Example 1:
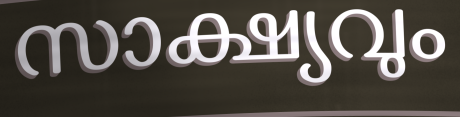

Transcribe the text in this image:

സാക്ഷ്യവും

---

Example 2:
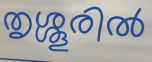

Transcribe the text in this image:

തൃശ്ശൂരിൽ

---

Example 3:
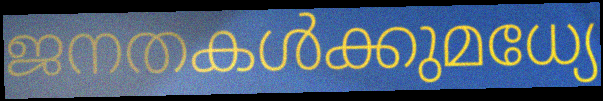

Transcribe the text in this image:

ജനതകൾക്കുമധ്യേ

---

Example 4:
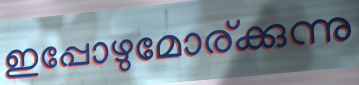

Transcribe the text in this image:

ഇപ്പോഴുമോര്ക്കുന്നു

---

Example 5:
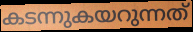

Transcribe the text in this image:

കടന്നുകയറുന്നത്